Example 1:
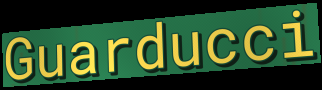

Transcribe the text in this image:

Guarducci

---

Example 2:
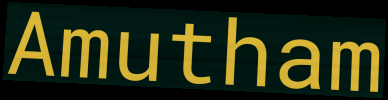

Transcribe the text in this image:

Amutham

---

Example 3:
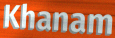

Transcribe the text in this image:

Khanam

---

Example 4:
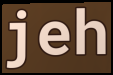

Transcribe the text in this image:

jeh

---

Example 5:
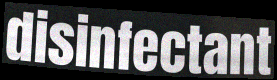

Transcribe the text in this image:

disinfectant